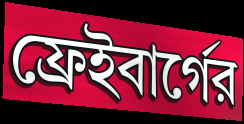
ফ্রেইবার্গের